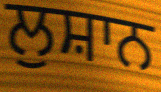
ਲੁਸ਼ਾਨ